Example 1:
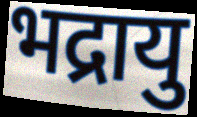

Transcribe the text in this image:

भद्रायु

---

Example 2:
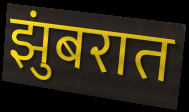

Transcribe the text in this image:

झुंबरात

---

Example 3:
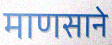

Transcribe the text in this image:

माणसाने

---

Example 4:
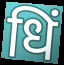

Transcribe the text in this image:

धिं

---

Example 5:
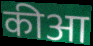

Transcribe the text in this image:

कीआ